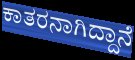
ಕಾತರನಾಗಿದ್ದಾನೆ